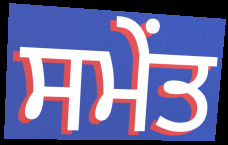
ਸਮੇਂਤ